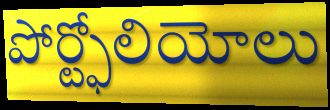
పోర్ట్ఫోలియోలు